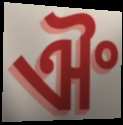
ଐଂ